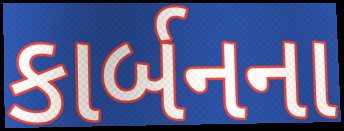
કાર્બનના